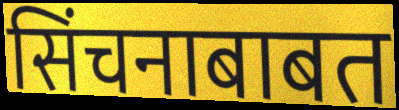
सिंचनाबाबत